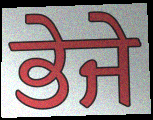
ਭੇਜੇ